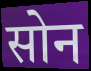
सोन